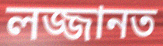
লজ্জানত